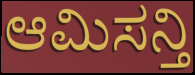
ಆಮಿಸನ್ತಿ